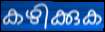
കഴിക്കുക